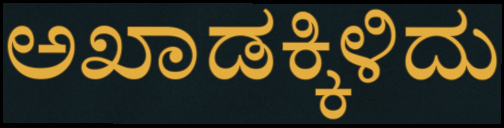
ಅಖಾಡಕ್ಕಿಳಿದು